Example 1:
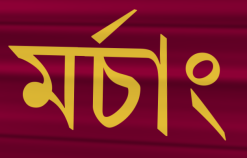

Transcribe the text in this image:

মৰ্চাং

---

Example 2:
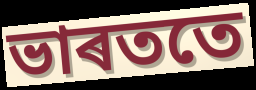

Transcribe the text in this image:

ভাৰততে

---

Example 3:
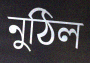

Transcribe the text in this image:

নুঠিল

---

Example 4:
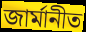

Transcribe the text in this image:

জাৰ্মানীত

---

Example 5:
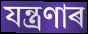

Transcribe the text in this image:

যন্ত্ৰণাৰ